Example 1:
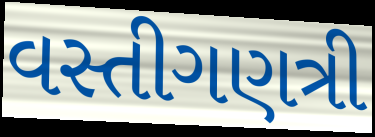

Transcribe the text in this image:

વસ્તીગણત્રી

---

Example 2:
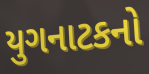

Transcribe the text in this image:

યુગનાટકનો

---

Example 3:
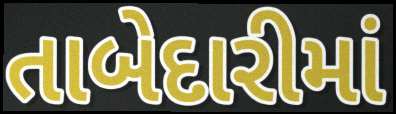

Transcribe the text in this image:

તાબેદારીમાં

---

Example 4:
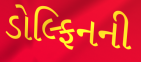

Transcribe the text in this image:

ડોલ્ફિનની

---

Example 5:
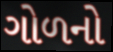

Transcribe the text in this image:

ગોળનો